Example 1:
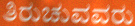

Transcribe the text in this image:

ತಿರುಚುವವರು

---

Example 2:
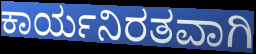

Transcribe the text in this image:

ಕಾರ್ಯನಿರತವಾಗಿ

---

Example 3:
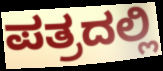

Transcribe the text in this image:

ಪತ್ರದಲ್ಲಿ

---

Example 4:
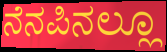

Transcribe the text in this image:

ನೆನಪಿನಲ್ಲೂ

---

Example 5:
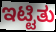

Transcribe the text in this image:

ಇಟ್ಟಿತು